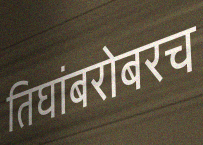
तिघांबरोबरच